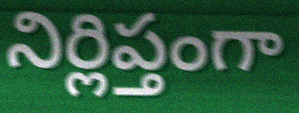
నిర్లిప్తంగా